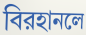
বিরহানলে